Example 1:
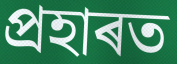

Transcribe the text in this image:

প্ৰহাৰত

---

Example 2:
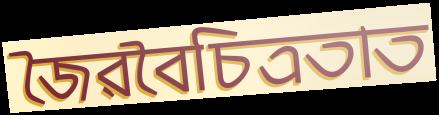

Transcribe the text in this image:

জৈৱবৈচিত্ৰতাত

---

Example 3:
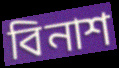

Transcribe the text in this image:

বিনাশ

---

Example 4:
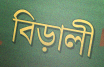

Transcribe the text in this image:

বিড়ালী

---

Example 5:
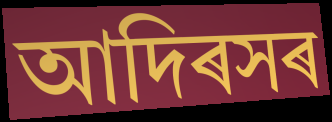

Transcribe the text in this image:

আদিৰসৰ